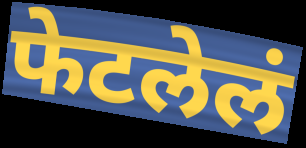
फेटलेलं